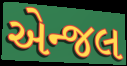
એન્જલ